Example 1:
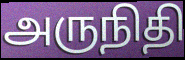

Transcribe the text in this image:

அருநிதி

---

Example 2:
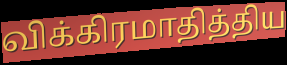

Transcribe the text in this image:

விக்கிரமாதித்திய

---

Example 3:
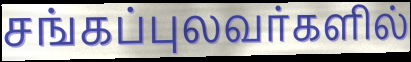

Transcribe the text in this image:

சங்கப்புலவர்களில்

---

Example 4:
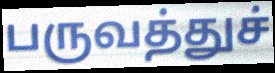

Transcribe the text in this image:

பருவத்துச்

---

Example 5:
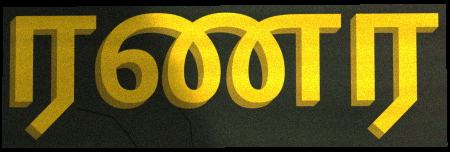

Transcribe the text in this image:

ரணர